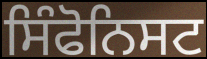
ਸਿੰਫੋਨਿਸਟ